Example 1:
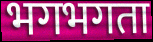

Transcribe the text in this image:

भगभगता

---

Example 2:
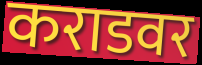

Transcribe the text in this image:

कराडवर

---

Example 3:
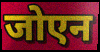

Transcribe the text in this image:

जोएन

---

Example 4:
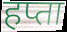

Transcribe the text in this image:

हप्ता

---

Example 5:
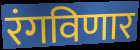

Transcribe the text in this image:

रंगविणार